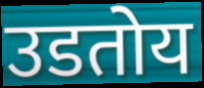
उडतोय